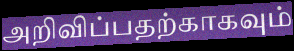
அறிவிப்பதற்காகவும்